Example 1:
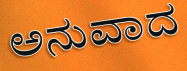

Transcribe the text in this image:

ಅನುವಾದ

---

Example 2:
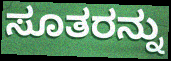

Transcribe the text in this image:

ಸೂತರನ್ನು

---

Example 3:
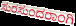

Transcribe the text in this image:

ಸುರಸುಂದರಾಂಗಿ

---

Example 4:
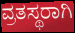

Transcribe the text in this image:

ವ್ರತಸ್ಥರಾಗಿ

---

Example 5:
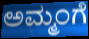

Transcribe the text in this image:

ಅಮ್ಮಂಗೆ